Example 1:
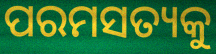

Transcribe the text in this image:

ପରମସତ୍ୟକୁ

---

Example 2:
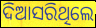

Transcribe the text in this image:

ଦିଆସରିଥିଲେ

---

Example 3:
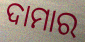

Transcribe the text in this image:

ଦାମାର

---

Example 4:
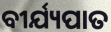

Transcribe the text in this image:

ବୀର୍ଯ୍ୟପାତ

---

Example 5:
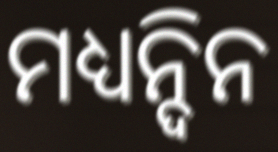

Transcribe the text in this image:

ମଧ୍ୟନ୍ଦିନ